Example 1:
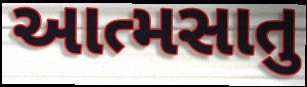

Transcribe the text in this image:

આત્મસાતુ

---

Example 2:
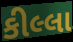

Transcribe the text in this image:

કીલ્લા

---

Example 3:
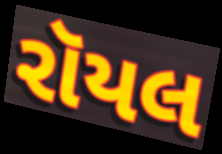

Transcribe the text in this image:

રૉયલ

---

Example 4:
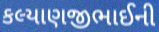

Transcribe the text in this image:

કલ્યાણજીભાઈની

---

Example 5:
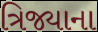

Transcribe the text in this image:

ત્રિજ્યાના